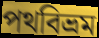
পথবিভ্রম